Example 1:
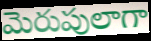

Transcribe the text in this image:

మెరుపులాగా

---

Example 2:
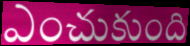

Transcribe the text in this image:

ఎంచుకుంది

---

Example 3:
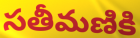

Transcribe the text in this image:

సతీమణికి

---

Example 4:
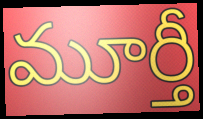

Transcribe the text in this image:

మూర్తీ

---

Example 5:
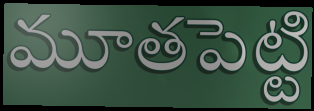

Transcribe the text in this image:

మూతపెట్టి